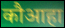
कौआहा